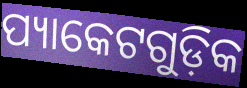
ପ୍ୟାକେଟଗୁଡ଼ିକ